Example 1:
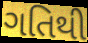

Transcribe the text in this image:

ગતિથી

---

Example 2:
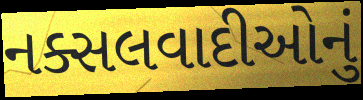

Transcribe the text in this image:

નક્સલવાદીઓનું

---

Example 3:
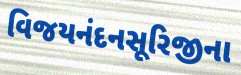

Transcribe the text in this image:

વિજયનંદનસૂરિજીના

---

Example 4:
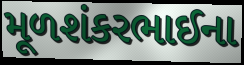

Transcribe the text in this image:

મૂળશંકરભાઈના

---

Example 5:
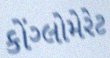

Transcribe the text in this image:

કોંગ્લોમેરેટ